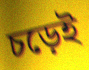
চড়েই